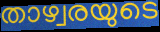
താഴ്വരയുടെ